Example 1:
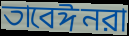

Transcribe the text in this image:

তাবেঈনরা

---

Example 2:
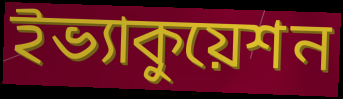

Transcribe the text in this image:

ইভ্যাকুয়েশন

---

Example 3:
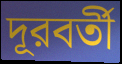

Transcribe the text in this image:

দূরবর্তী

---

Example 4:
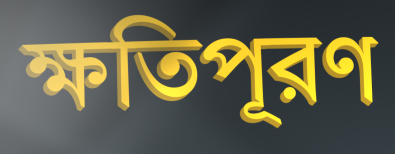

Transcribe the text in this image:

ক্ষতিপূরণ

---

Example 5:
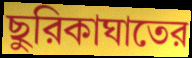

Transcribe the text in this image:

ছুরিকাঘাতের